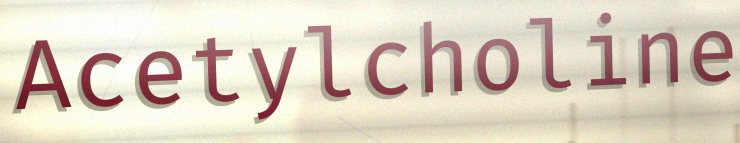
Acetylcholine